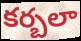
కర్బలా